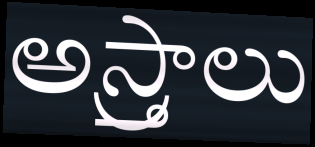
అస్ర్తాలు